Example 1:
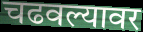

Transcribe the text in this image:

चढवल्यावर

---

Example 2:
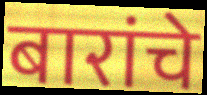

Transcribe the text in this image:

बारांचे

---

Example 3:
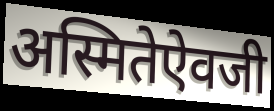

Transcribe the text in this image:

अस्मितेऐवजी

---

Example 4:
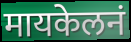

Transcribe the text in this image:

मायकेलनं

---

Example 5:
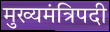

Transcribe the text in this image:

मुख्यमंत्रिपदी